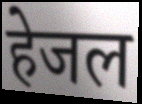
हेजल